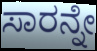
ಸಾರನ್ನೇ